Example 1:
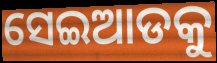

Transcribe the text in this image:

ସେଇଆଡକୁ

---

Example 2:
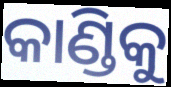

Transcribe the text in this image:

କାଣ୍ଡିକୁ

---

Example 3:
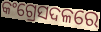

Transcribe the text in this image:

କଂଗ୍ରେସଦଳରେ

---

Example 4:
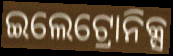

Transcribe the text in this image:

ଇଲେଟ୍ରୋନିକ୍ସ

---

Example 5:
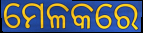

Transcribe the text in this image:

ମେଳକରେ